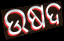
ଉଷଦ